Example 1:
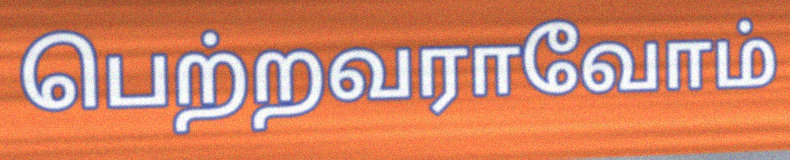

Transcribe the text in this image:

பெற்றவராவோம்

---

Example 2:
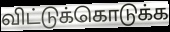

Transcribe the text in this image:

விட்டுக்கொடுக்க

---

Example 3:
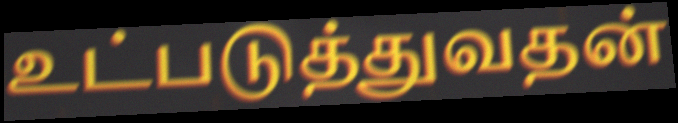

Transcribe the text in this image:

உட்படுத்துவதன்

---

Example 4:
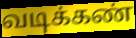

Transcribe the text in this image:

வடிக்கண்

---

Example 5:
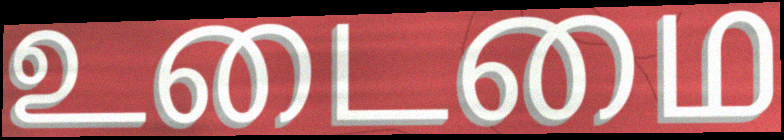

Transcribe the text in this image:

உடைமை